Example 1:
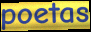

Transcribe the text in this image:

poetas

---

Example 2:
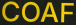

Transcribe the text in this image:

COAF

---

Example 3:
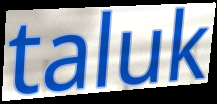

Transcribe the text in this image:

taluk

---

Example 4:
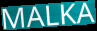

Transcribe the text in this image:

MALKA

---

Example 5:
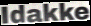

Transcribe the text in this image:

Idakke